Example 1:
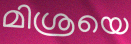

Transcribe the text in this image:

മിശ്രയെ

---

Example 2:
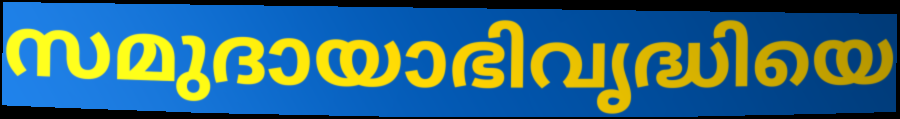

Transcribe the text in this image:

സമുദായാഭിവൃദ്ധിയെ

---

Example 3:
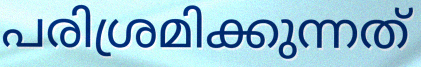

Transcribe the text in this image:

പരിശ്രമിക്കുന്നത്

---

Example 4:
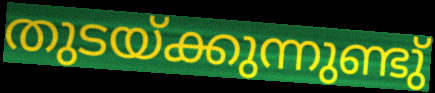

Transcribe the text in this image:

തുടയ്ക്കുന്നുണ്ടു്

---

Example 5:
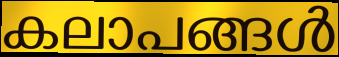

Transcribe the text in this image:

കലാപങ്ങൾ